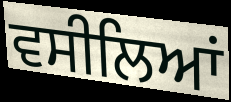
ਵਸੀਲਿਆਂ